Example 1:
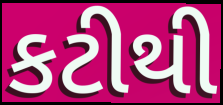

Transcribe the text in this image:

કટીથી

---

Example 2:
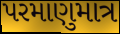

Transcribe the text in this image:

પરમાણુમાત્ર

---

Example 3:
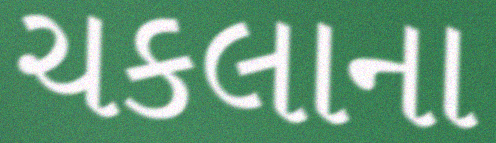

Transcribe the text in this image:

ચકલાના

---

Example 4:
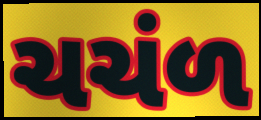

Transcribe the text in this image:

ચચંળ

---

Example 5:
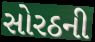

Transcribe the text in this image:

સોરઠની